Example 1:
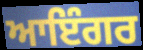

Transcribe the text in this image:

ਆਇੰਗਰ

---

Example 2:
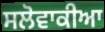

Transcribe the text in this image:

ਸਲੋਵਾਕੀਆ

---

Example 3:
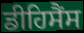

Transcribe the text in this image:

ਡੀਹਿਸੈਂਸ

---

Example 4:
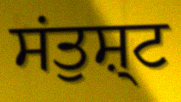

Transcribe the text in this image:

ਸਂਤੁਸ਼੍ਟ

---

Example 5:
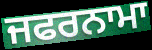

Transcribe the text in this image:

ਜਫਰਨਾਮਾ